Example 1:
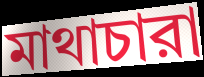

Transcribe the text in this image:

মাথাচারা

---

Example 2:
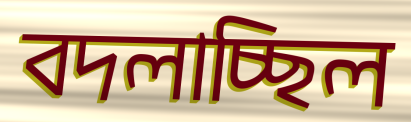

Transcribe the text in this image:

বদলাচ্ছিল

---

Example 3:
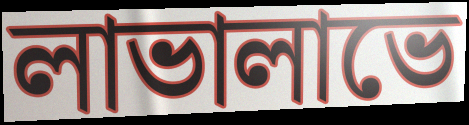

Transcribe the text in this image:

লাভালাভে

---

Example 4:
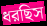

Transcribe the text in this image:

ধরছিস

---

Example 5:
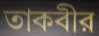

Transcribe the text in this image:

তাকবীর